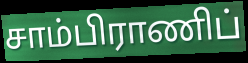
சாம்பிராணிப்